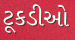
ટૂકડીઓ